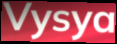
Vysya